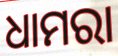
ଧାମରା